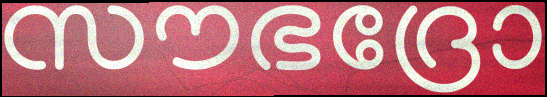
സൗഭദ്രോ